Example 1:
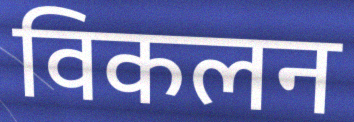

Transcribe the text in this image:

विकलन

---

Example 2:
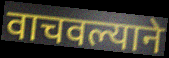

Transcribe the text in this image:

वाचवल्याने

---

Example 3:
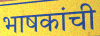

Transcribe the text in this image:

भाषकांची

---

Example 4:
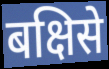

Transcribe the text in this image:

बक्षिसे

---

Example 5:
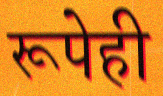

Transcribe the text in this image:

रूपेही